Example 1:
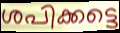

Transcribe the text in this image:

ശപിക്കട്ടെ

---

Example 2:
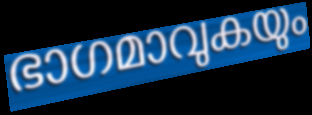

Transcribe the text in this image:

ഭാഗമാവുകയും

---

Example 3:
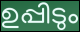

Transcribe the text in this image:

ഉപ്പിടും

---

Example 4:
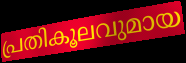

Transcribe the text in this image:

പ്രതികൂലവുമായ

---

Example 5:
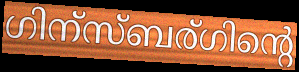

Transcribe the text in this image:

ഗിന്സ്ബര്ഗിന്റെ